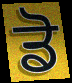
ਡੋ